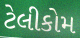
ટેલીકોમ